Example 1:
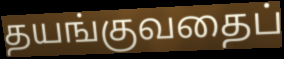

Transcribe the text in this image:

தயங்குவதைப்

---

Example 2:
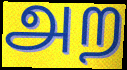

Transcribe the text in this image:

அற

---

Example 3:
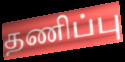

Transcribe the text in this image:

தணிப்பு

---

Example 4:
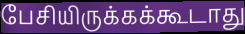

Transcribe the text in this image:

பேசியிருக்கக்கூடாது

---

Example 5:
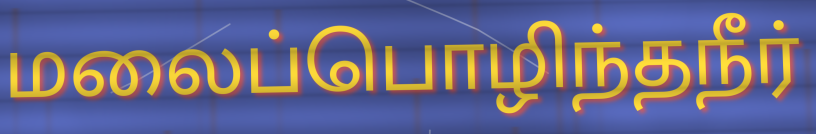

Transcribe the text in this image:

மலைப்பொழிந்தநீர்